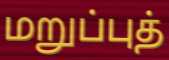
மறுப்புத்